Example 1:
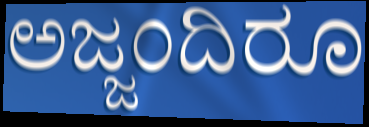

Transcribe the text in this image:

ಅಜ್ಜಂದಿರೂ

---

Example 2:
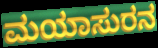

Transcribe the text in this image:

ಮಯಾಸುರನ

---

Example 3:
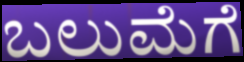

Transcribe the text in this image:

ಬಲುಮೆಗೆ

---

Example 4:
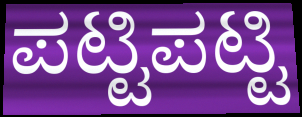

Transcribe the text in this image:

ಪಟ್ಟಿಪಟ್ಟಿ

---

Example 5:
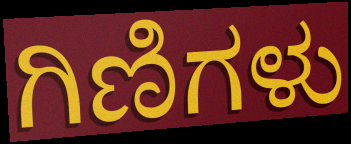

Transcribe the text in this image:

ಗಿಣಿಗಳು